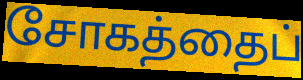
சோகத்தைப்